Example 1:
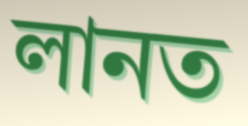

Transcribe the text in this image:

লানত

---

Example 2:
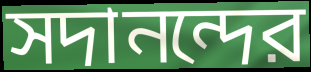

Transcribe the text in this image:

সদানন্দের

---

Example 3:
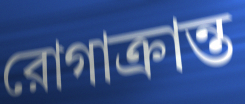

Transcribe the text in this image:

রোগাক্রান্ত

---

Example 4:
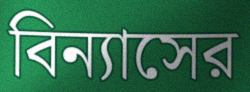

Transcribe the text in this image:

বিন্যাসের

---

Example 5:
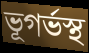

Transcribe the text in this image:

ভূগর্ভস্থ